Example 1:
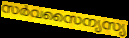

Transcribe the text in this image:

സർവസൈന്യസ്യ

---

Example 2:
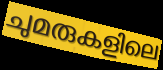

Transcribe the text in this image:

ചുമരുകളിലെ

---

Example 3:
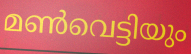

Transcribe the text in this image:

മൺവെട്ടിയും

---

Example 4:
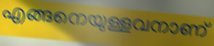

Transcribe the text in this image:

എങ്ങനെയുള്ളവനാണ്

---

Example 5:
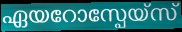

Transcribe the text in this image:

ഏയറോസ്പേയ്സ്